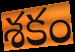
శకం